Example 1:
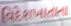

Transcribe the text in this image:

વિદેશખાતાના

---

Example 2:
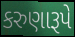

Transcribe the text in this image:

કરુણારૂપે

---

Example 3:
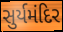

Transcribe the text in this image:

સુર્યમંદિર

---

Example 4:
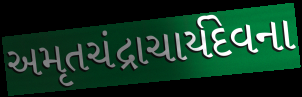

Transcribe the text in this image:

અમૃતચંદ્રાચાર્યદેવના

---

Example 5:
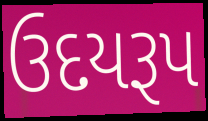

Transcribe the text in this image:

ઉદયરૂપ